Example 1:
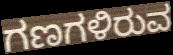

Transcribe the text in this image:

ಗಣಗಳಿರುವ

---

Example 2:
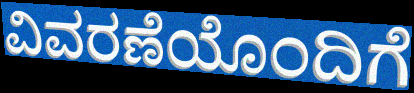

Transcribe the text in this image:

ವಿವರಣೆಯೊಂದಿಗೆ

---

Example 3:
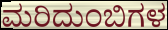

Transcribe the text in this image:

ಮರಿದುಂಬಿಗಳ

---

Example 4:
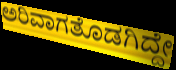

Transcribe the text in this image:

ಅರಿವಾಗತೊಡಗಿದ್ದೇ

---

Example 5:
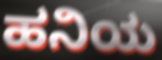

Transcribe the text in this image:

ಹನಿಯ